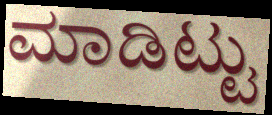
ಮಾಡಿಟ್ಟು